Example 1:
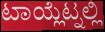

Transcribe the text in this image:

ಟಾಯ್ಲೆಟ್ನಲ್ಲಿ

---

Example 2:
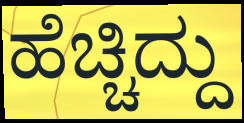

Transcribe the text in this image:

ಹೆಚ್ಚಿದ್ದು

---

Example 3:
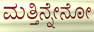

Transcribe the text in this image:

ಮತ್ತಿನ್ನೇನೋ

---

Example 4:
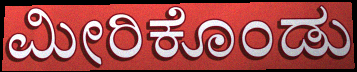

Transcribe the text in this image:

ಮೀರಿಕೊಂಡು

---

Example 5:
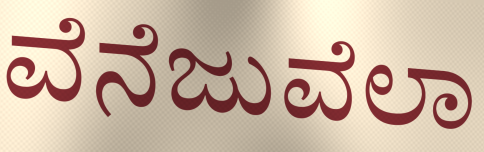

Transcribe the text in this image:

ವೆನೆಜುವೆಲಾ